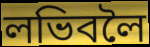
লভিবলৈ